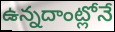
ఉన్నదాంట్లోనే